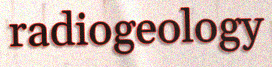
radiogeology